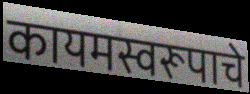
कायमस्वरूपाचे